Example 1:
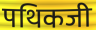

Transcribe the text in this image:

पथिकजी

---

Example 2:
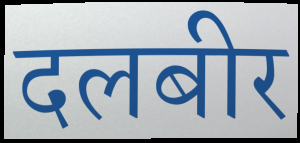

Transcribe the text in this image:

दलबीर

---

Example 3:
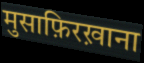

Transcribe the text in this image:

मुसाफ़िरख़ाना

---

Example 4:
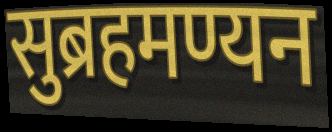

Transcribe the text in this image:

सुब्रहमण्यन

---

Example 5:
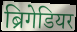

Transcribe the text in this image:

ब्रिगेडियर